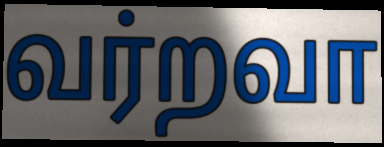
வர்றவா